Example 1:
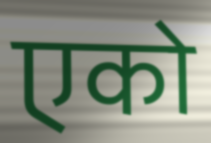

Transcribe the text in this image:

एको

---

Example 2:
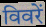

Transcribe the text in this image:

विवरें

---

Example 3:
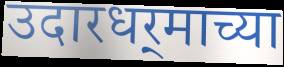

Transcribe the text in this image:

उदारधर्माच्या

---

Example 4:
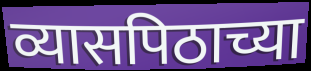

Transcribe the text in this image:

व्यासपिठाच्या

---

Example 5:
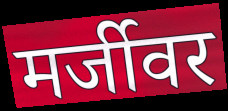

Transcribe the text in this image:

मर्जीवर